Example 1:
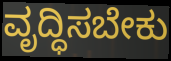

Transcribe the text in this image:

ವೃದ್ಧಿಸಬೇಕು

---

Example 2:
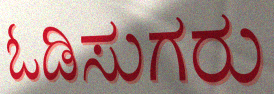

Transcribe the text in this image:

ಓಡಿಸುಗರು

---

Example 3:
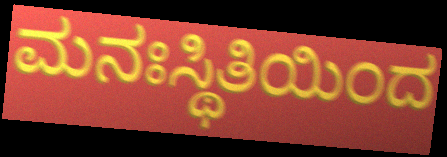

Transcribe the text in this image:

ಮನಃಸ್ಥಿತಿಯಿಂದ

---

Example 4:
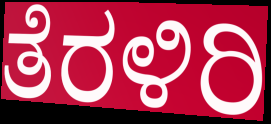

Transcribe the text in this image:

ತೆರಳಿರಿ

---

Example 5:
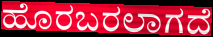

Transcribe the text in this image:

ಹೊರಬರಲಾಗದೆ